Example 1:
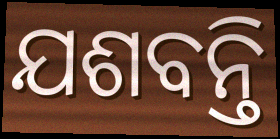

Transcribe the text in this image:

ଯଶବନ୍ତି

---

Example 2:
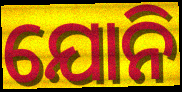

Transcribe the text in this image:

ଯୋନି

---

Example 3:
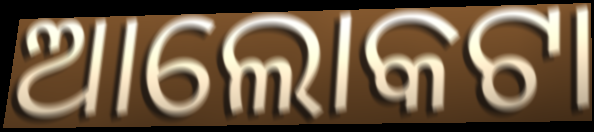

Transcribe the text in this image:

ଆଲୋକଟା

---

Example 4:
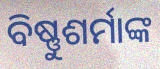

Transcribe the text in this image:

ବିଷ୍ଣୁଶର୍ମାଙ୍କ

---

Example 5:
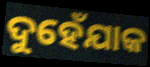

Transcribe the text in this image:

ଦୁହେଁଯାକ